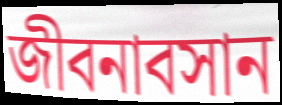
জীবনাবসান